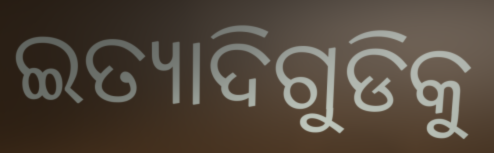
ଇତ୍ୟାଦିଗୁଡିକୁ